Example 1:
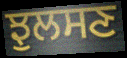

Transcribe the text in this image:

ਝੁਲਸਣ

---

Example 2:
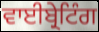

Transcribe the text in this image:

ਵਾਈਬ੍ਰੇਟਿੰਗ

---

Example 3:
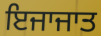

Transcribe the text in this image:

ਇਜਾਜਾਤ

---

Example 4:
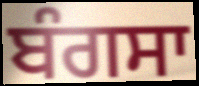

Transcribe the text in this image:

ਬੰਗਸਾ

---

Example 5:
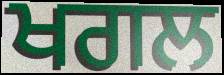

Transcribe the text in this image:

ਖਗਲ